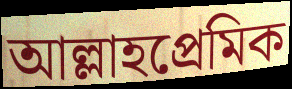
আল্লাহপ্রেমিক